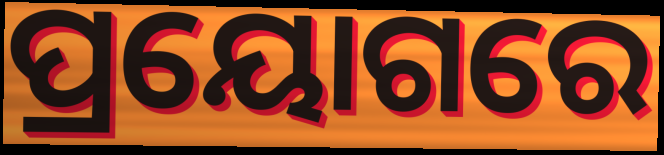
ପ୍ରୟୋଗରେ